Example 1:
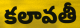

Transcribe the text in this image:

కలావతీ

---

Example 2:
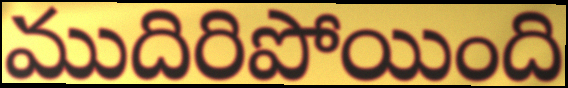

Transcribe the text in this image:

ముదిరిపోయింది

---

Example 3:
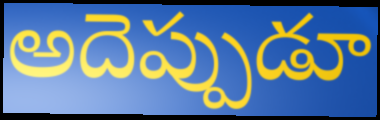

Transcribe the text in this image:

అదెప్పుడూ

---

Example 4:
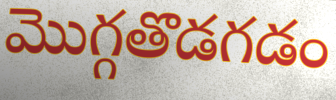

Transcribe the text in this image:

మొగ్గతొడగడం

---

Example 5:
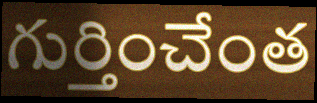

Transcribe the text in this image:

గుర్తించేంత